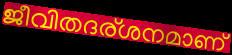
ജീവിതദര്ശനമാണ്